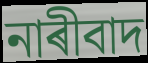
নাৰীবাদ